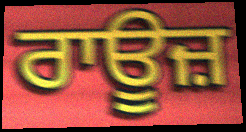
ਰਾਊਜ਼